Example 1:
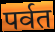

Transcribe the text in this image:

पर्वत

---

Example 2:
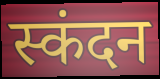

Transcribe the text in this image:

स्कंदन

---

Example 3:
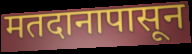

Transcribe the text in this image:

मतदानापासून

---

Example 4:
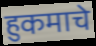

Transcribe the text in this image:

हुकमाचे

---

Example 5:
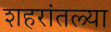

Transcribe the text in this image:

शहरांतल्या